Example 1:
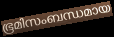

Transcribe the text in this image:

ഭൂമിസംബന്ധമായ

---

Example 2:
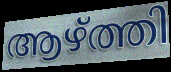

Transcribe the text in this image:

ആഴ്ത്തി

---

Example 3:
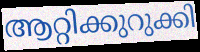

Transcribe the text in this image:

ആറ്റിക്കുറുക്കി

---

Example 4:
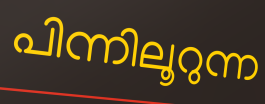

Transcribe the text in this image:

പിന്നിലൂറുന്ന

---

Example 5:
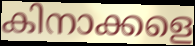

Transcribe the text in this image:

കിനാക്കളെ